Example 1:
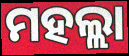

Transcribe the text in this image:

ମହଲ୍ଲା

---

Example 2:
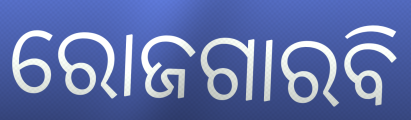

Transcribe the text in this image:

ରୋଜଗାରବି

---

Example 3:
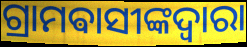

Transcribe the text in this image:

ଗ୍ରାମଵାସୀଙ୍କଦ୍ୱାରା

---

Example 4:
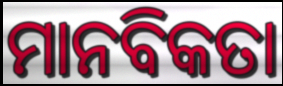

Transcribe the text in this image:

ମାନବିକତା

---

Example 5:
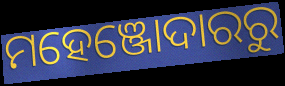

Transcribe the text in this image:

ମହେଞ୍ଜୋଦାରରୁ